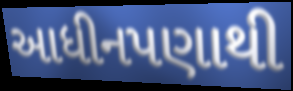
આધીનપણાથી